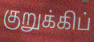
குறுக்கிப்